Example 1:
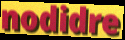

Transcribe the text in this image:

nodidre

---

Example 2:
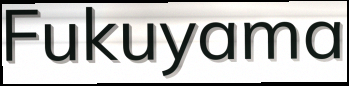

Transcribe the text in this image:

Fukuyama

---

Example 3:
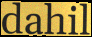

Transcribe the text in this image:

dahil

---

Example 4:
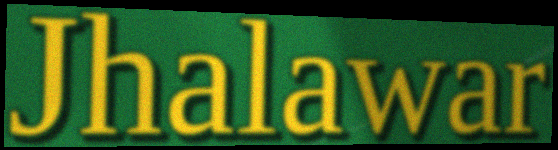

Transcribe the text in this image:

Jhalawar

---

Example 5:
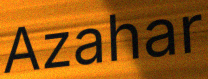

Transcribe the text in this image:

Azahar